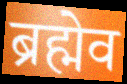
ब्रह्मेव